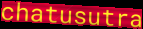
chatusutra